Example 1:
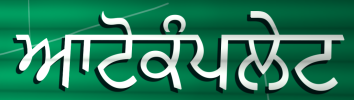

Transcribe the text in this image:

ਆਟੋਕੰਪਲੇਟ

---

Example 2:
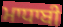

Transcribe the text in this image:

ਮਾਧਾਬੀ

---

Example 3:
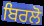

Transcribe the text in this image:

ਬਿਰਲੋ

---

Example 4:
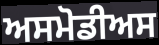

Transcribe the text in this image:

ਅਸਮੋਡੀਅਸ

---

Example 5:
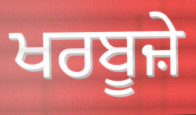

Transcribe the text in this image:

ਖਰਬੂਜ਼ੇ